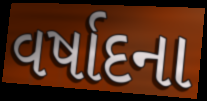
વર્ષાદના